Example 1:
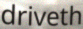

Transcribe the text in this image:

driveth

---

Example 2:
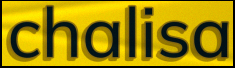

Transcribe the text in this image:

chalisa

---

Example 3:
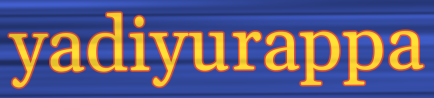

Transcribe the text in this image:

yadiyurappa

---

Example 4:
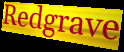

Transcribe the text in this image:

Redgrave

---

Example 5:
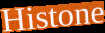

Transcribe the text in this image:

Histone